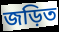
জড়িত